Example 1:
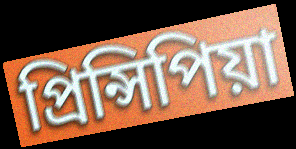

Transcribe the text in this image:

প্ৰিন্সিপিয়া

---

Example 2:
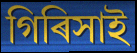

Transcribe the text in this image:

গিৰিসাই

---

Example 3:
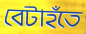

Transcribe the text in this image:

বেটাহঁতে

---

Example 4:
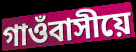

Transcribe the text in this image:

গাওঁবাসীয়ে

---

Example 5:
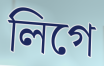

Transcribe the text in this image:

লিগে